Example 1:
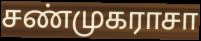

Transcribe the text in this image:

சண்முகராசா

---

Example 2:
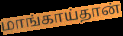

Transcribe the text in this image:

மாங்காய்தான்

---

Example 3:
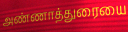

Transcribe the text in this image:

அண்ணாத்துரையை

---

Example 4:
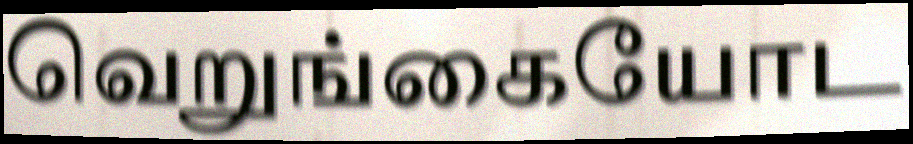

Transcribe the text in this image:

வெறுங்கையோட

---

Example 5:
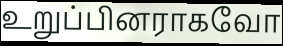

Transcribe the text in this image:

உறுப்பினராகவோ